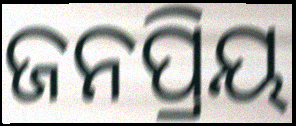
ଜନପ୍ରିୟ